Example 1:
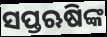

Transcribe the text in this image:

ସପ୍ତଋଷିଙ୍କ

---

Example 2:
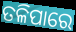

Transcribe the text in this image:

ତଳିପାରେ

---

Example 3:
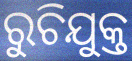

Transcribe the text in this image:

ରୁଚିଯୁକ୍ତ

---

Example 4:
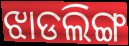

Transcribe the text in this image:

ଝାଡଲିଙ୍ଗ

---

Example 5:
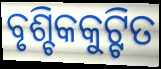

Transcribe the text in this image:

ବୃଶ୍ଚିକକୁଟ୍ଟିତ